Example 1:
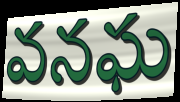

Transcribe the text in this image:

వనఘ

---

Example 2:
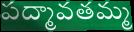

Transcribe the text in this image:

పద్మావతమ్మ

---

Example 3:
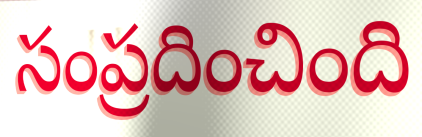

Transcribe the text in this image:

సంప్రదించింది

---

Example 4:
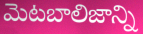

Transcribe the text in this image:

మెటబాలిజాన్ని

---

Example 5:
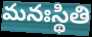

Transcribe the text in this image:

మనఃస్థితి